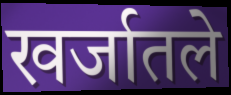
खर्जातले